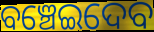
ବଞ୍ଚେଇଦେବ